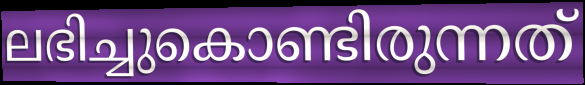
ലഭിച്ചുകൊണ്ടിരുന്നത്